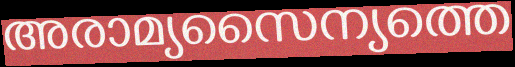
അരാമ്യസൈന്യത്തെ